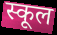
स्कूल